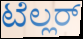
ಟೆಲ್ಲರ್